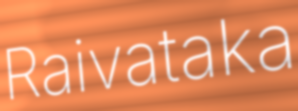
Raivataka